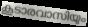
കൂടാരവാസിയും